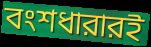
বংশধারারই